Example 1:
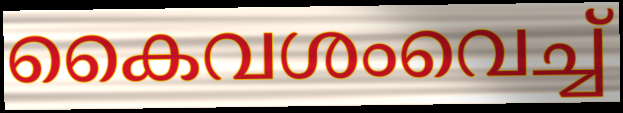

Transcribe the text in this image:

കൈവശംവെച്ച്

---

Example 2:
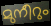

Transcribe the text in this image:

മുനീറും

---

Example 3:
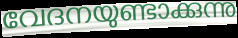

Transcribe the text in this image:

വേദനയുണ്ടാക്കുന്നു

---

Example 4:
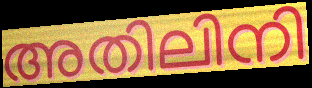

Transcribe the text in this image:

അതിലിനി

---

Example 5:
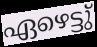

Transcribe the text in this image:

ഏഴെട്ടു്